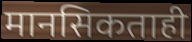
मानसिकताही